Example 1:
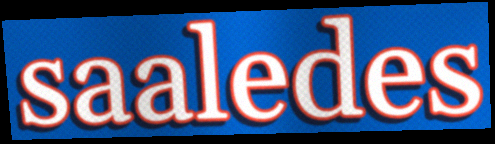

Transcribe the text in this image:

saaledes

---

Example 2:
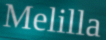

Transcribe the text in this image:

Melilla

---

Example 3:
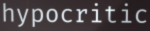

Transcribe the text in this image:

hypocritic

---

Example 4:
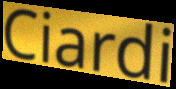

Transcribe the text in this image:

Ciardi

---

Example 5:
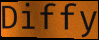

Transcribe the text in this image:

Diffy